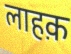
लाहक़